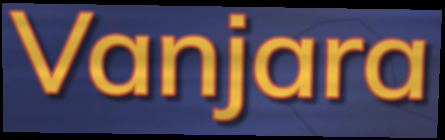
Vanjara